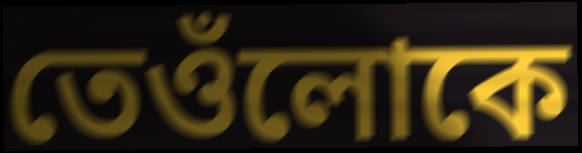
তেওঁলোকে